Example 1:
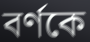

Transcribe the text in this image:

বর্ণকে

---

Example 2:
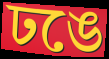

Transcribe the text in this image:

ঢঙে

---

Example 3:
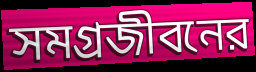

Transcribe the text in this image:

সমগ্রজীবনের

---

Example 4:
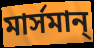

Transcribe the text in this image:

মার্সমান্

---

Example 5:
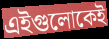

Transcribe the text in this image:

এইগুলোকেই